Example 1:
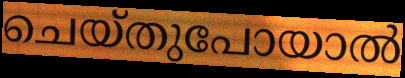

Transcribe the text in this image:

ചെയ്തുപോയാൽ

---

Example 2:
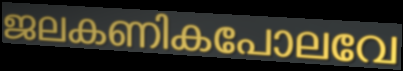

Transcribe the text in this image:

ജലകണികപോലവേ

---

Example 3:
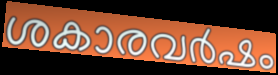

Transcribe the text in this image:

ശകാരവർഷം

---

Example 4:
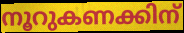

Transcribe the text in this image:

നൂറുകണക്കിന്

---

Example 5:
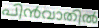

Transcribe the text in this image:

പിൻവാതിൽ